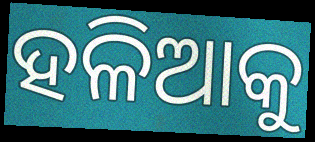
ହଳିଆକୁ